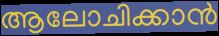
ആലോചിക്കാൻ